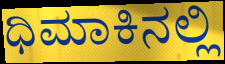
ಧಿಮಾಕಿನಲ್ಲಿ